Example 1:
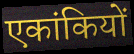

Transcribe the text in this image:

एकांकियों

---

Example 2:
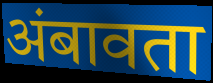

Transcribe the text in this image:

अंबावता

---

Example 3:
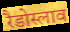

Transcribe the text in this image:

रैडोस्लाव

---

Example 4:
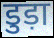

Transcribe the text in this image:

डुड़ा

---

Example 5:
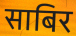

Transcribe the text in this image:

साबिर